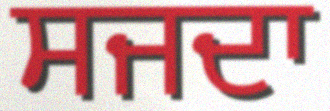
ਸਜਦਾ